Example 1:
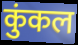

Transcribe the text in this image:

कुंकल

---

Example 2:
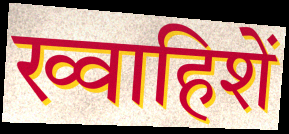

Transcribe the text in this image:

ख्वाहिशें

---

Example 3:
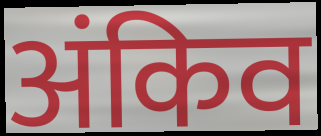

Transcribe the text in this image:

अंकिव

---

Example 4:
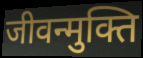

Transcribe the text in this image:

जीवन्मुक्ति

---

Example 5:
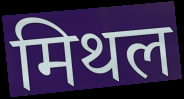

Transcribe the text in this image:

मिथल